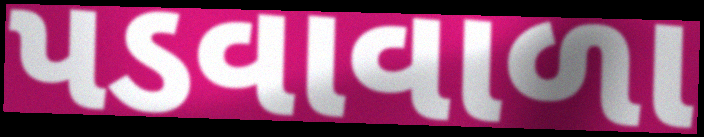
પડવાવાળા